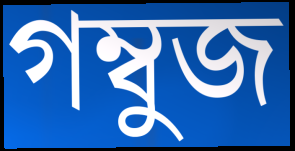
গম্বুজ